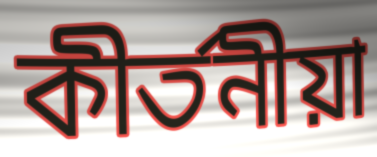
কীর্তনীয়া